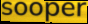
sooper